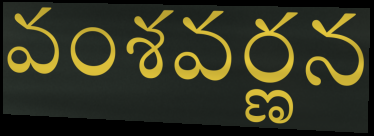
వంశవర్ణన